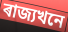
ৰাজ্যখনে